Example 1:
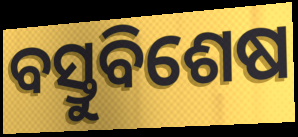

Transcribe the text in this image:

ବସ୍ତୁବିଶେଷ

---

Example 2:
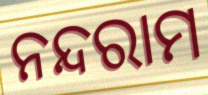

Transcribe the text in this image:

ନନ୍ଦରାମ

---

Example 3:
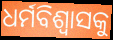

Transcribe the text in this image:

ଧର୍ମବିଶ୍ଵାସକୁ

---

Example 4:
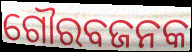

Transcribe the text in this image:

ଗୌରବଜନକ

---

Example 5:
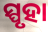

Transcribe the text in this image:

ସ୍ପୃହା